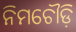
ନିମଚୌଡ଼ି